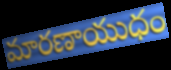
మారణాయుధం